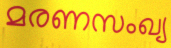
മരണസംഖ്യ